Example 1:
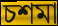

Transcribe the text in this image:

চশমা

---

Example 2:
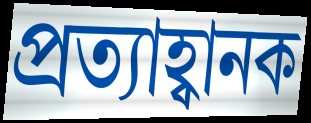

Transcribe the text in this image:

প্ৰত্যাহ্বানক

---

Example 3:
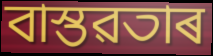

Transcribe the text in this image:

বাস্তৱতাৰ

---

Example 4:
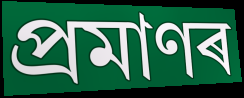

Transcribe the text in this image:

প্ৰমাণৰ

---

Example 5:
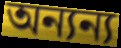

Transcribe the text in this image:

অন্যন্য